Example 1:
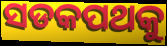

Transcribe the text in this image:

ସଡକପଥକୁ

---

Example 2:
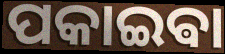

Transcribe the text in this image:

ପକାଇଵା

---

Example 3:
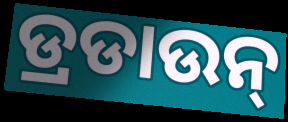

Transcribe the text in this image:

ଡ୍ରଡାଉନ୍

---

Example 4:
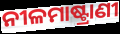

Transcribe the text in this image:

ନୀଳମାଷ୍ଟ୍ରାଣୀ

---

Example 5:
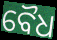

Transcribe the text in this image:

ବୈଧ